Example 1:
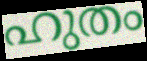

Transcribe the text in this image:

ഹുതം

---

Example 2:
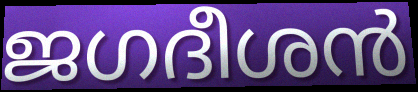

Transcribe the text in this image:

ജഗദീശൻ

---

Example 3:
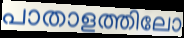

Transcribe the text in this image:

പാതാളത്തിലോ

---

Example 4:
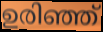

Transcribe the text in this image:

ഉരിഞ്ഞ്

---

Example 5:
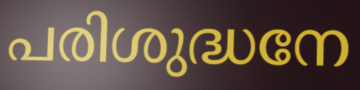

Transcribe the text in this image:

പരിശുദ്ധനേ